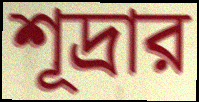
শূদ্রার